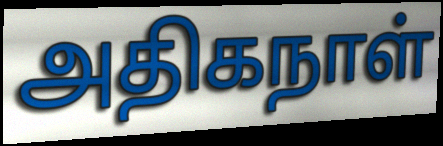
அதிகநாள்